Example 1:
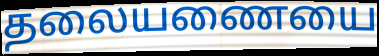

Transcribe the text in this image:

தலையணையை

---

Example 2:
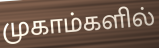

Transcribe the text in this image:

முகாம்களில்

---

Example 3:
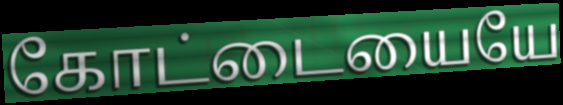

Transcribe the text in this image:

கோட்டையையே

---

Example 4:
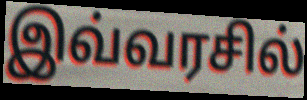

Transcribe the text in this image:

இவ்வரசில்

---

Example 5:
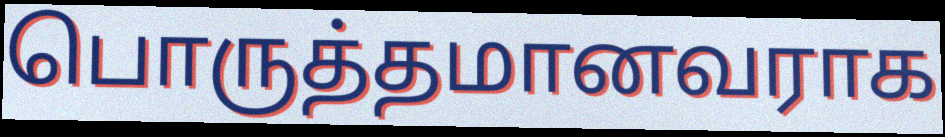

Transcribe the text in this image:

பொருத்தமானவராக